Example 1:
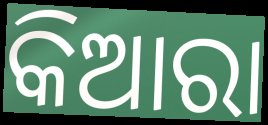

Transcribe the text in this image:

କିଆରା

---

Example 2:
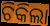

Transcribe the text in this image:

ଚିକିଲା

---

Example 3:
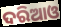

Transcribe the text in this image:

ଦରିଆଓ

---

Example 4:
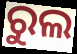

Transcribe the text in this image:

ରୁଲ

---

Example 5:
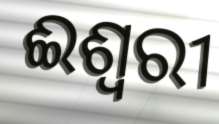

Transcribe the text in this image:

ଈଶ୍ଵରୀ